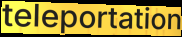
teleportation